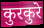
कुरकुरे